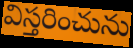
విస్తరించును